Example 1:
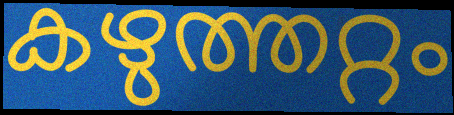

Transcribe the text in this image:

കഴുത്തറ്റം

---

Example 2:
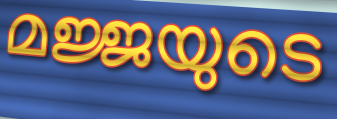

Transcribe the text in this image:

മജ്ജയുടെ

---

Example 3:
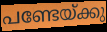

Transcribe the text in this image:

പണ്ടേയ്ക്കു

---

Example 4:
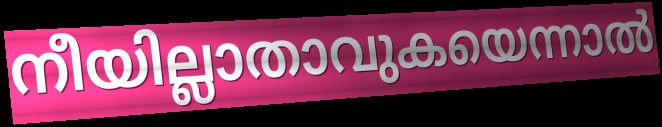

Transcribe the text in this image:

നീയില്ലാതാവുകയെന്നാൽ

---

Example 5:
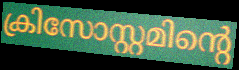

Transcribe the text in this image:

ക്രിസോസ്റ്റമിന്റെ